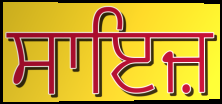
ਸਾਇਜ਼